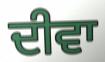
ਦੀਵਾ